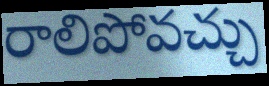
రాలిపోవచ్చు